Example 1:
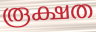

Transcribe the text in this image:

രൂക്ഷത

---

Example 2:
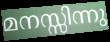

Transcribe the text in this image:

മനസ്സിന്നു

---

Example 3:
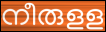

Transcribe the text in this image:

നീരുളള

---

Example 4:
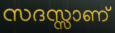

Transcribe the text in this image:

സദസ്സാണ്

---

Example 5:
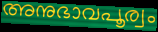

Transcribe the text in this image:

അനുഭാവപൂര്വം